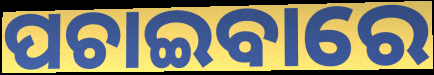
ପଚାଇବାରେ